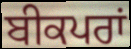
ਬੀਕਪਰਾਂ